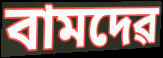
বামদেৱ